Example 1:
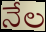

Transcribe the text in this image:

నేల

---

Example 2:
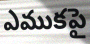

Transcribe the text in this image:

ఎముకపై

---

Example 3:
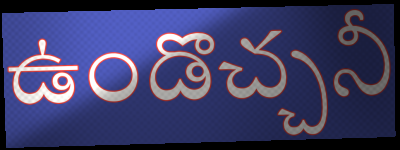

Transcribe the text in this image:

ఉండొచ్చనీ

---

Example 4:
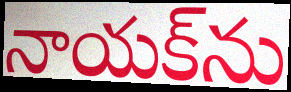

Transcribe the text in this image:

నాయక్‌ను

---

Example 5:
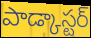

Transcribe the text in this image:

పాడ్కాస్టర్